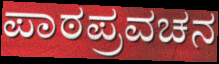
ಪಾಠಪ್ರವಚನ